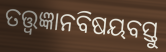
ତତ୍ତ୍ୱଜ୍ଞାନବିଷୟବସ୍ତୁ